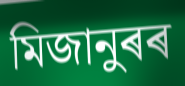
মিজানুৰৰ